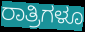
ರಾತ್ರಿಗಳೂ